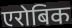
एरोबिक